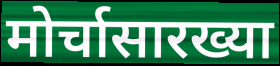
मोर्चासारख्या